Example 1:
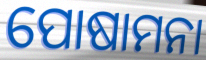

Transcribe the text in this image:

ପୋଷାମନା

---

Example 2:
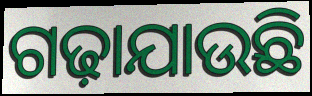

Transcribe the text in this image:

ଗଢ଼ାଯାଉଛି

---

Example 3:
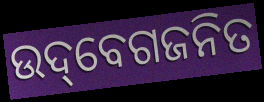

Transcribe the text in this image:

ଉଦ୍‌ବେଗଜନିତ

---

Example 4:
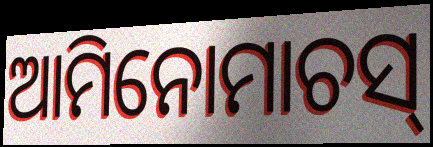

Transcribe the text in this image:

ଆମିନୋମାଚସ୍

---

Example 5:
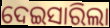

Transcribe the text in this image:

ଦେଇସାରିଲା